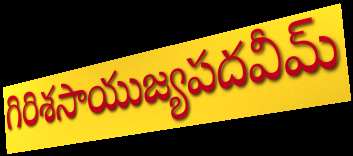
గిరిశసాయుజ్యపదవీమ్